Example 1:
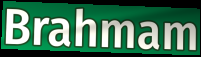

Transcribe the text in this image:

Brahmam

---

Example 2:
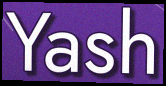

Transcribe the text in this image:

Yash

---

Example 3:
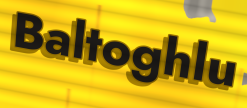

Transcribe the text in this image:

Baltoghlu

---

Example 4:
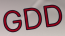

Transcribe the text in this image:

GDD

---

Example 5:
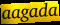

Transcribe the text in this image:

aagada